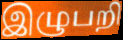
இழுபறி